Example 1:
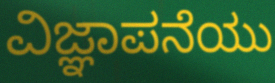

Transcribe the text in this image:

ವಿಜ್ಞಾಪನೆಯು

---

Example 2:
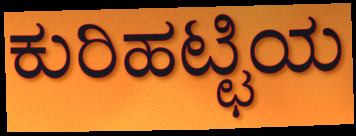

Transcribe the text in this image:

ಕುರಿಹಟ್ಟಿಯ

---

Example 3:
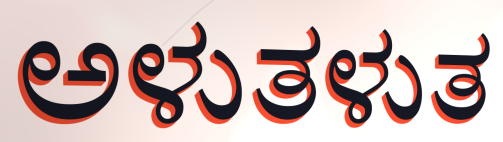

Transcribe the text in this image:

ಅಳುತಳುತ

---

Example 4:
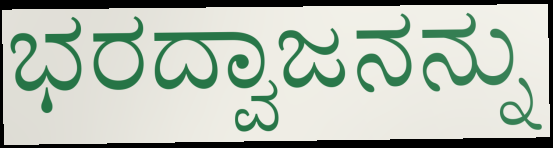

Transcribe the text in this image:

ಭರದ್ವಾಜನನ್ನು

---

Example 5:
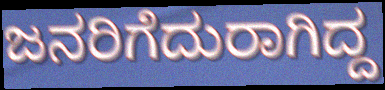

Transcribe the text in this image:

ಜನರಿಗೆದುರಾಗಿದ್ದ